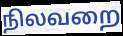
நிலவறை